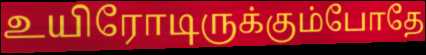
உயிரோடிருக்கும்போதே